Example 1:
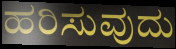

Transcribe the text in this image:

ಹರಿಸುವುದು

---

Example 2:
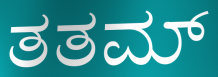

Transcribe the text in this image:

ತತಮ್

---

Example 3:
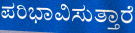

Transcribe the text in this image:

ಪರಿಭಾವಿಸುತ್ತಾರೆ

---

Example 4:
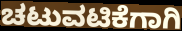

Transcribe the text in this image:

ಚಟುವಟಿಕೆಗಾಗಿ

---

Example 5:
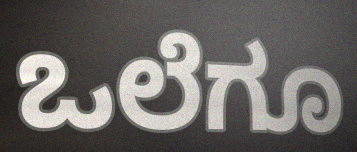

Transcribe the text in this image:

ಒಲೆಗೂ